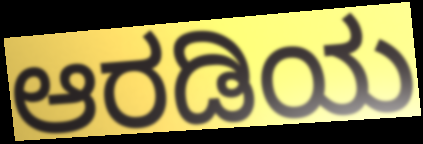
ಆರಡಿಯ